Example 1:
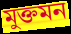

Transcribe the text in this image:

মুক্তমন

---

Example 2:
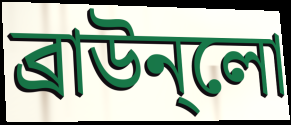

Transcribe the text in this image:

ব্রাউন্লো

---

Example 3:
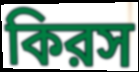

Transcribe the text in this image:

কিরস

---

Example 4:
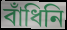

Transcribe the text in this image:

বাঁধিনি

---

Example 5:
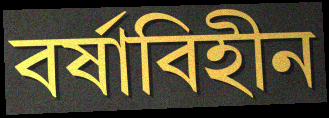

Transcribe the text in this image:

বর্ষাবিহীন